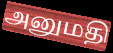
அனுமதி